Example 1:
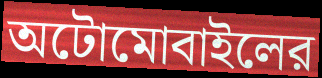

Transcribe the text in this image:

অটোমোবাইলের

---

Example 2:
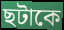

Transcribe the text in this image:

ছটাকে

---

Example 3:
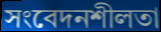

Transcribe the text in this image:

সংবেদনশীলতা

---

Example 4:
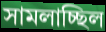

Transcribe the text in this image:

সামলাচ্ছিল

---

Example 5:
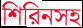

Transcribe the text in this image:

শিরিনসহ